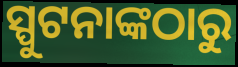
ସ୍ପୁଟନାଙ୍କଠାରୁ